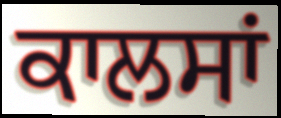
ਕਾਲਸਾਂ